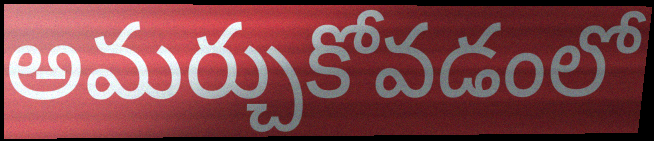
అమర్చుకోవడంలో